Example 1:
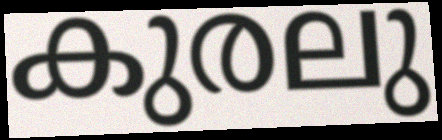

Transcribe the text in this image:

കുരലു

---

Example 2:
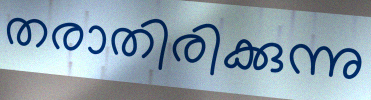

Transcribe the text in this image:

തരാതിരിക്കുന്നു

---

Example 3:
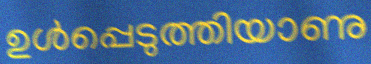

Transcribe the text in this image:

ഉൾപ്പെടുത്തിയാണു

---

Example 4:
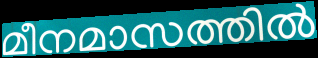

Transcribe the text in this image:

മീനമാസത്തിൽ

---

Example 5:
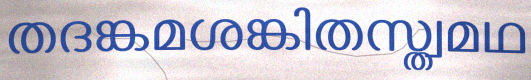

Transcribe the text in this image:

തദങ്കമശങ്കിതസ്ത്വമഥ